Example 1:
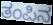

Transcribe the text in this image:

ತಂಪಿನ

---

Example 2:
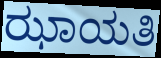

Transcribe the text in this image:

ಝಾಯತಿ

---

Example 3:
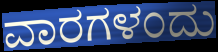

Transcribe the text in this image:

ವಾರಗಳಂದು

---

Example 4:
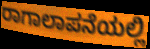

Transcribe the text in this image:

ರಾಗಾಲಾಪನೆಯಲ್ಲಿ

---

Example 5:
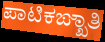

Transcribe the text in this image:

ಪಾಟಿಕಙ್ಖಾತಿ